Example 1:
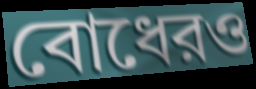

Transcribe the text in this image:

বোধেরও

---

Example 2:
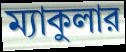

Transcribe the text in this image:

ম্যাকুলার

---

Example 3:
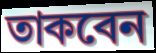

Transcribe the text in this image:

তাকবেন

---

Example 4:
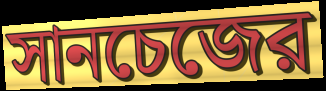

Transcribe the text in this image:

সানচেজের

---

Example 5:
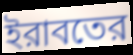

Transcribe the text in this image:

ইরাবতের